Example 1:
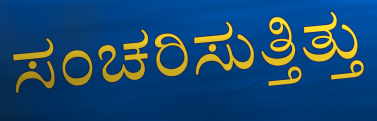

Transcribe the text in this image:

ಸಂಚರಿಸುತ್ತಿತ್ತು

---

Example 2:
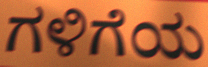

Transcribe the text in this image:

ಗಳಿಗೆಯ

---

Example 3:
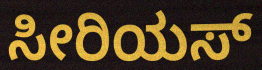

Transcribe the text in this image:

ಸೀರಿಯಸ್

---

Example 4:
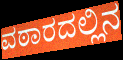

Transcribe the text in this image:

ವಠಾರದಲ್ಲಿನ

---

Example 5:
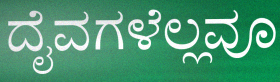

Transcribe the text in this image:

ದೈವಗಳೆಲ್ಲವೂ